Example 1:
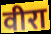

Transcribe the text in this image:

वीरा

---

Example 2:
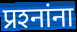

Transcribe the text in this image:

प्रश्‍नांना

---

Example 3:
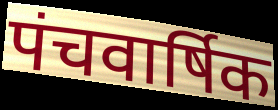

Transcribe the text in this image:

पंचवार्षिक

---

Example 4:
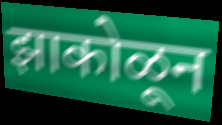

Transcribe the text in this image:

झाकोळून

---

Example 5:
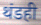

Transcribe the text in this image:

थंडही